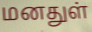
மனதுள்